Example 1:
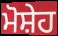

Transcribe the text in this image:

ਮੋਸ਼ੇਹ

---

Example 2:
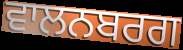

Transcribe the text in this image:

ਵਾਲਨਬਰਗ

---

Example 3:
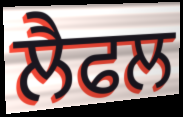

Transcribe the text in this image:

ਲੈਫਲ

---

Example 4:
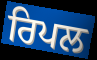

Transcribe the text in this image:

ਰਿਪਲ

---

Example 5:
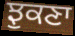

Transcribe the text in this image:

ਝੁਕਣਾ